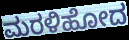
ಮರಳಿಹೋದ